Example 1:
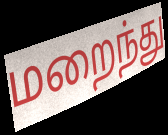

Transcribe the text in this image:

மறைந்து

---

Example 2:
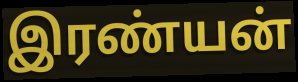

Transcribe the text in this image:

இரண்யன்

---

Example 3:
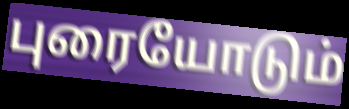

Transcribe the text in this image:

புரையோடும்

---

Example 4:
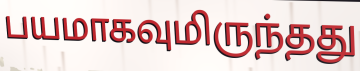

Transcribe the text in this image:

பயமாகவுமிருந்தது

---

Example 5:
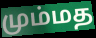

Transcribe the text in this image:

மும்மத